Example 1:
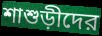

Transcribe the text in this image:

শাশুড়ীদের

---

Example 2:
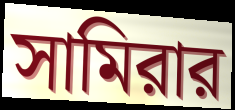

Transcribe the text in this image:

সামিরার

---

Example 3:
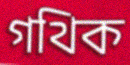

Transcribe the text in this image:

গথিক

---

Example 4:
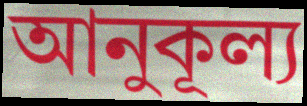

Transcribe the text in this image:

আনুকূল্য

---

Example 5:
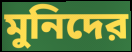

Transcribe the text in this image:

মুনিদের